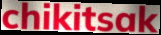
chikitsak